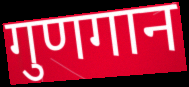
गुणगान